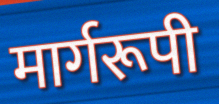
मार्गरूपी